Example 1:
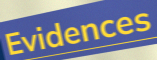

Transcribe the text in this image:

Evidences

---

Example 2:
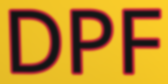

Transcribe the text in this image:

DPF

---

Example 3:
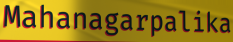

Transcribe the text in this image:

Mahanagarpalika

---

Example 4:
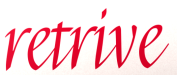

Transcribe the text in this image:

retrive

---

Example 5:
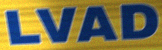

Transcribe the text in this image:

LVAD